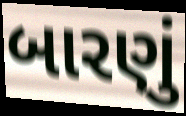
બારણું